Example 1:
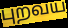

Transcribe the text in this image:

புறவய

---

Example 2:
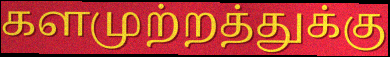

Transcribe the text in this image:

களமுற்றத்துக்கு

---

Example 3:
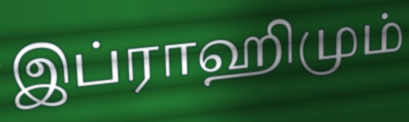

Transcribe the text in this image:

இப்ராஹிமும்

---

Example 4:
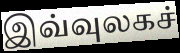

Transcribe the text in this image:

இவ்வுலகச்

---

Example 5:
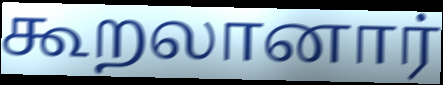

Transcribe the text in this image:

கூறலானார்